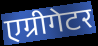
एग्रीगेटर